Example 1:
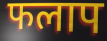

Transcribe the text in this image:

फलाप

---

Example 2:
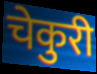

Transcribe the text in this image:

चेकुरी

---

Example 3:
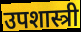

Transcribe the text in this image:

उपशास्त्री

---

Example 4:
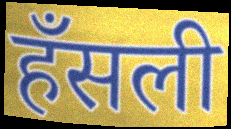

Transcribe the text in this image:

हँसली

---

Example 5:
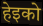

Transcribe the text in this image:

हेइको